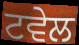
ਟਵੇਲ